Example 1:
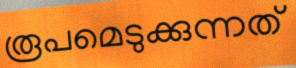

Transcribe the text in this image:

രൂപമെടുക്കുന്നത്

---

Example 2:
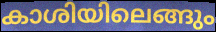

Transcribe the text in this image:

കാശിയിലെങ്ങും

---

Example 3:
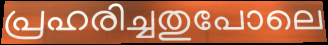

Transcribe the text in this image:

പ്രഹരിച്ചതുപോലെ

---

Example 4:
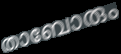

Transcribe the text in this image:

താബോരും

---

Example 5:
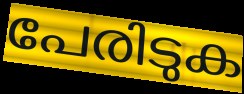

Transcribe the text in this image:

പേരിടുക